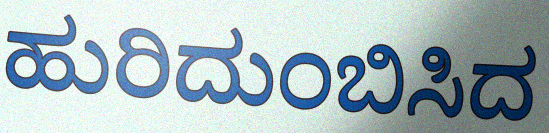
ಹುರಿದುಂಬಿಸಿದ